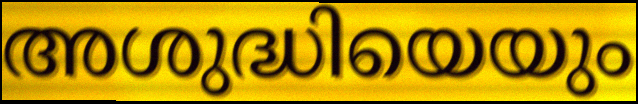
അശുദ്ധിയെയും